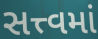
સત્ત્વમાં